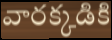
వారక్కడికి